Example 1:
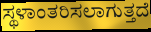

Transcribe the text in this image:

ಸ್ಥಳಾಂತರಿಸಲಾಗುತ್ತದೆ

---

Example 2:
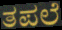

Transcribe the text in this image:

ತಪಲೆ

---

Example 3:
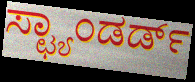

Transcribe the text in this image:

ಸ್ಟ್ಯಾಂಡರ್ಡ್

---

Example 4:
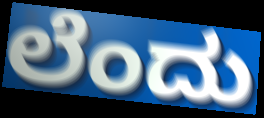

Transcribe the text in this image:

ಲೆಂದು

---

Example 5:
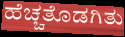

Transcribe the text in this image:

ಹೆಚ್ಚತೊಡಗಿತು